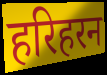
हरिहरन